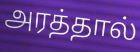
அரத்தால்